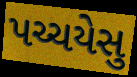
પચ્ચયેસુ